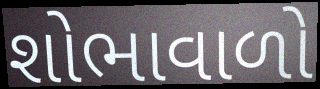
શોભાવાળો